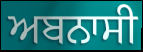
ਅਬਨਾਸੀ